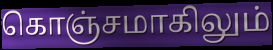
கொஞ்சமாகிலும்